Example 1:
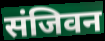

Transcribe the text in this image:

संजिवन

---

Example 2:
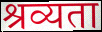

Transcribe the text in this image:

श्रव्यता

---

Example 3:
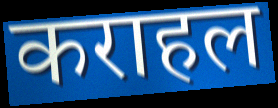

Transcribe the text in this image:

कराहल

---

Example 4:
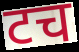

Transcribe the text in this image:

टच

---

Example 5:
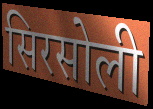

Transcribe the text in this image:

सिरसोली